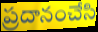
ప్రదానంచేసి